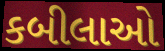
કબીલાઓ